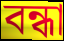
বন্ধা